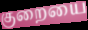
குறையை